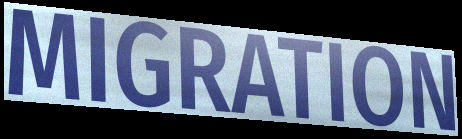
MIGRATION